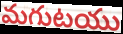
మగుటయు